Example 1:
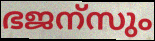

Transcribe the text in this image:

ഭജന്സും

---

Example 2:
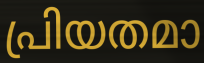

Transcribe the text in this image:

പ്രിയതമാ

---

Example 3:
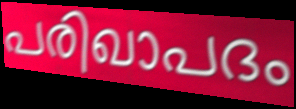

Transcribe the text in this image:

പരിഖാപദം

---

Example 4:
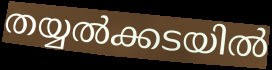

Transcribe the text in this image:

തയ്യൽക്കടയിൽ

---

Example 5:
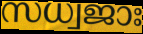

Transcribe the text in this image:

സധ്വജാഃ